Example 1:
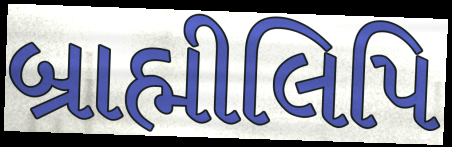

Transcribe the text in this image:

બ્રાહ્મીલિપિ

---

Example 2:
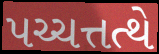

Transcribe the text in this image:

પચ્ચત્તત્થે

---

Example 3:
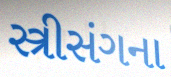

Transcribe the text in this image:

સ્ત્રીસંગના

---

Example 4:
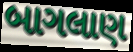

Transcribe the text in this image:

બાગલાણ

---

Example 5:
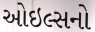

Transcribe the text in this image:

ઓઇલ્સનો